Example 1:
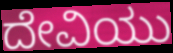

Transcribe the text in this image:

ದೇವಿಯು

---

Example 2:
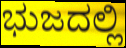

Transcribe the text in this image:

ಭುಜದಲ್ಲಿ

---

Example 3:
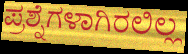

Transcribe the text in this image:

ಪ್ರಶ್ನೆಗಳಾಗಿರಲಿಲ್ಲ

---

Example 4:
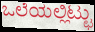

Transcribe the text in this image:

ಒಲೆಯಲ್ಲಿಟ್ಟು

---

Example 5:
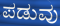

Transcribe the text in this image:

ಪಡುವು